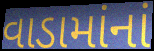
વાડામાંનાં